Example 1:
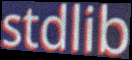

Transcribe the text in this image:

stdlib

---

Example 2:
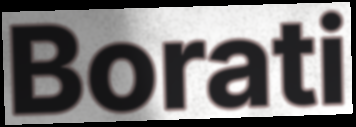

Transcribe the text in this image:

Borati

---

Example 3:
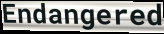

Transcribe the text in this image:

Endangered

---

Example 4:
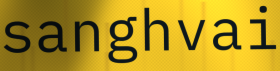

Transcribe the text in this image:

sanghvai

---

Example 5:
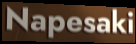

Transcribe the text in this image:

Napesaki